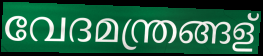
വേദമന്ത്രങ്ങള്